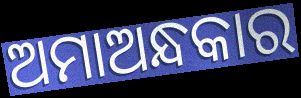
ଅମାଅନ୍ଧକାର